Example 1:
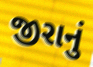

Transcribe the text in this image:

જીરાનું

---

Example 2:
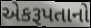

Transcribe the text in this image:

એકરૂપતાનો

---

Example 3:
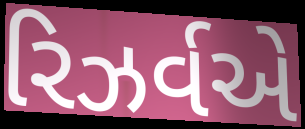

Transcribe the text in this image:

રિઝર્વએ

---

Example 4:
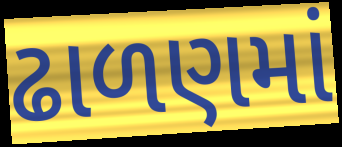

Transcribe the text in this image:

ઢાળણમાં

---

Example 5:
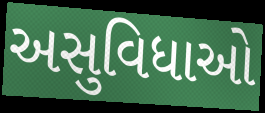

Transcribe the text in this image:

અસુવિધાઓ